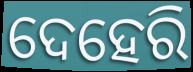
ଦେହେରି